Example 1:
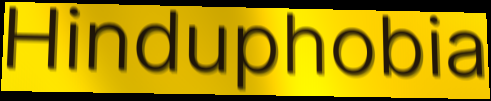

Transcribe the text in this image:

Hinduphobia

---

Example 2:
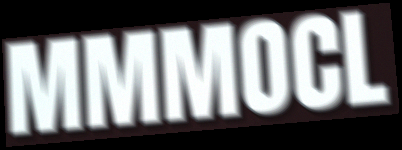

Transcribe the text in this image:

MMMOCL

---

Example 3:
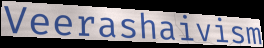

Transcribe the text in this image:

Veerashaivism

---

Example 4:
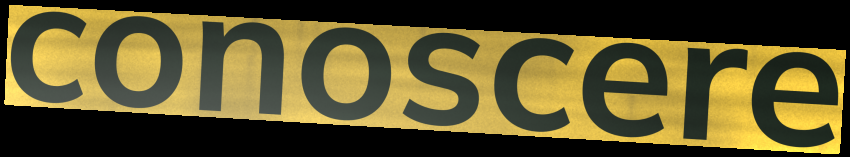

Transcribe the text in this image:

conoscere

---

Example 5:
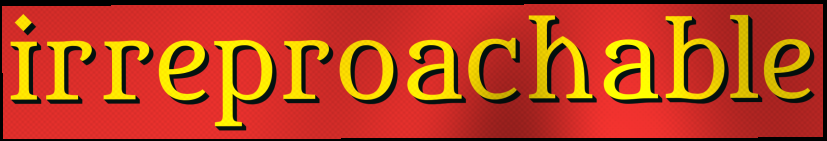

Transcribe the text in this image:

irreproachable